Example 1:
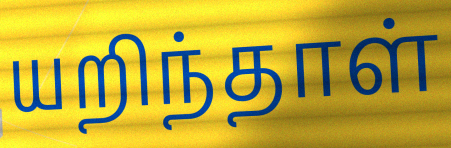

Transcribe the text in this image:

யறிந்தாள்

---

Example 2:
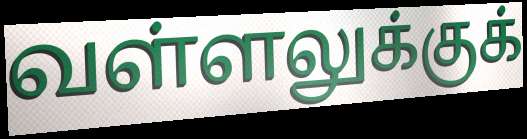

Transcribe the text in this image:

வள்ளலுக்குக்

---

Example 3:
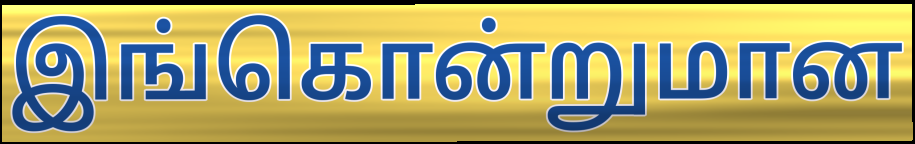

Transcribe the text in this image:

இங்கொன்றுமான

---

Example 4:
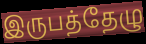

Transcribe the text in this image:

இருபத்தேழு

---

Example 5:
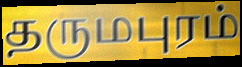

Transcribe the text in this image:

தருமபுரம்